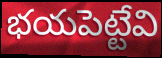
భయపెట్టేవి